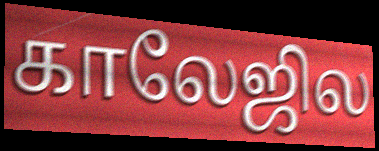
காலேஜில